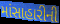
માંસાહારીની